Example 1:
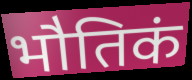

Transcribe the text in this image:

भौतिकं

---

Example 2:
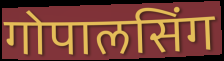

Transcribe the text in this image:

गोपालसिंग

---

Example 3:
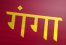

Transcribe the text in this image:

गंगा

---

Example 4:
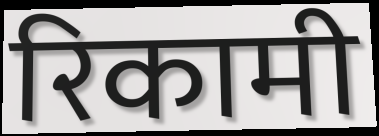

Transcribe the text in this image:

रिकामी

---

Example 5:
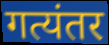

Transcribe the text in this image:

गत्यंतर